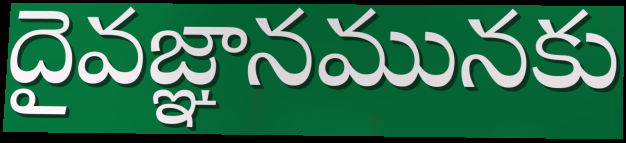
దైవజ్ఞానమునకు